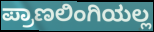
ಪ್ರಾಣಲಿಂಗಿಯಲ್ಲ